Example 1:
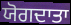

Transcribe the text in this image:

ਯੋਗਦਾਤਾ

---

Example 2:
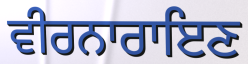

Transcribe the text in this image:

ਵੀਰਨਾਰਾਇਣ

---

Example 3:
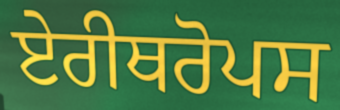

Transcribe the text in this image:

ਏਰੀਥਰੋਪਸ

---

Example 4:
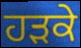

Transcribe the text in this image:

ਹੜਕੇ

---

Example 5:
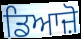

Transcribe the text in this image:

ਡਿਆਜ਼ੋ